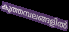
കൂത്തമ്പലങ്ങളിൽ